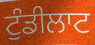
ਟੁੰਡੀਲਾਟ